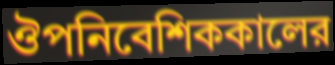
ঔপনিবেশিককালের